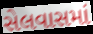
સેલવાસમાં